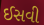
ઈસવી